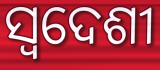
ସ୍ୱଦେଶୀ